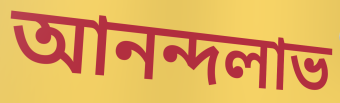
আনন্দলাভ